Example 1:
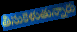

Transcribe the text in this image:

తీసుకెళుతున్నారు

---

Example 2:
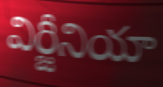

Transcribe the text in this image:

విర్జీనియా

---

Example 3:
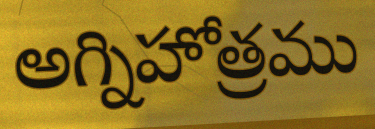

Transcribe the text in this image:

అగ్నిహోత్రము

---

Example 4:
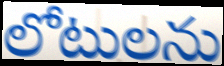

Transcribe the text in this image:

లోటులను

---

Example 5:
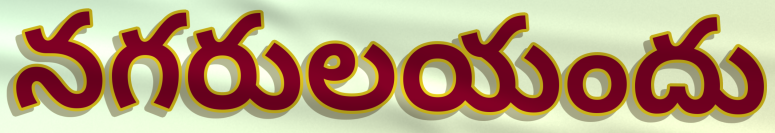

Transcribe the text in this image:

నగరులయందు